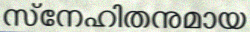
സ്‌നേഹിതനുമായ